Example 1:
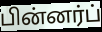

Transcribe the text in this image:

பின்னர்ப்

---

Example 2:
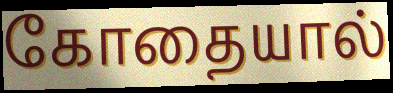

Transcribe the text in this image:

கோதையால்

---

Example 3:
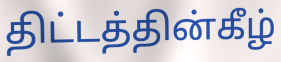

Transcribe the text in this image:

திட்டத்தின்கீழ்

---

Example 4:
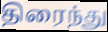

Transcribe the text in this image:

திரைந்து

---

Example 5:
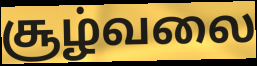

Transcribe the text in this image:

சூழ்வலை